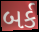
બર્ક